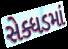
સેક્ધડમાં